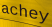
achey